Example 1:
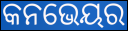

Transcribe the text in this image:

କନଭେୟର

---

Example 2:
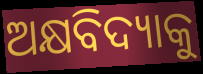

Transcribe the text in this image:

ଅକ୍ଷବିଦ୍ୟାକୁ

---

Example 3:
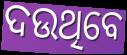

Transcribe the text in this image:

ଦଉଥିବେ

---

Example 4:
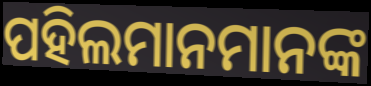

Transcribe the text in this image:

ପହିଲମାନମାନଙ୍କ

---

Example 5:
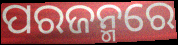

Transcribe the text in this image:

ପରଜନ୍ମରେ